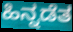
ಹಿನ್ನಡೆತ